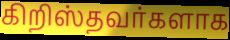
கிறிஸ்தவர்களாக